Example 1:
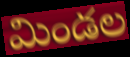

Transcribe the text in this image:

మిండల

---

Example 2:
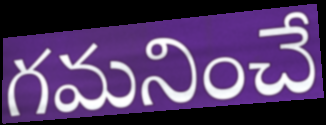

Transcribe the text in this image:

గమనించే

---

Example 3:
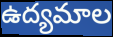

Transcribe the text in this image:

ఉద్యమాల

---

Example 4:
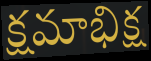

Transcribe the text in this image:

క్షమాభిక్ష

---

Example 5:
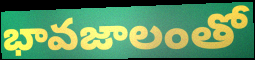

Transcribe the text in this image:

భావజాలంతో